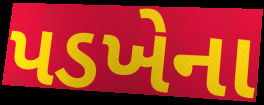
પડખેના